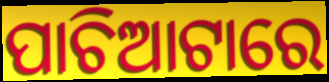
ପାଚିଆଟାରେ